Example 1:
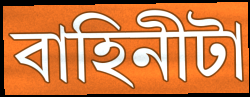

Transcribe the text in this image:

বাহিনীটা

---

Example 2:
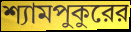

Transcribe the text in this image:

শ্যামপুকুরের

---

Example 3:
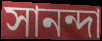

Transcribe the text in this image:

সানন্দা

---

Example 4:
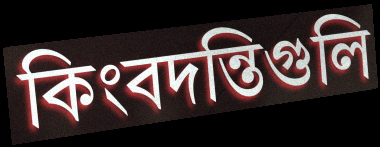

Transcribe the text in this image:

কিংবদন্তিগুলি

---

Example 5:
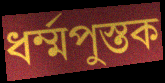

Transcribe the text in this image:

ধর্ম্মপুস্তক